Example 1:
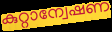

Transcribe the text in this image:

കുറ്റാന്വേഷണ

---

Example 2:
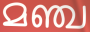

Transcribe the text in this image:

മഞ്ച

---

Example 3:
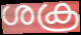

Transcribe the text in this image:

ശക്ര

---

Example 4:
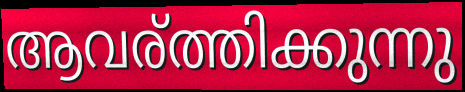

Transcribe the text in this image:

ആവര്ത്തിക്കുന്നു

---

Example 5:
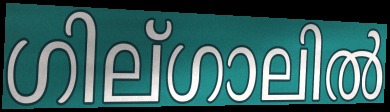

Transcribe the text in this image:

ഗില്ഗാലിൽ